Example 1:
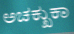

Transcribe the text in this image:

ಅಚಕ್ಖುಕಾ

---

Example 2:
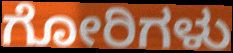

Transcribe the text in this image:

ಗೋರಿಗಳು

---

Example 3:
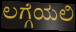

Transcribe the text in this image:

ಲಗ್ಗೆಯಲಿ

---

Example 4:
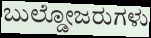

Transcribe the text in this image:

ಬುಲ್ಡೋಜರುಗಳು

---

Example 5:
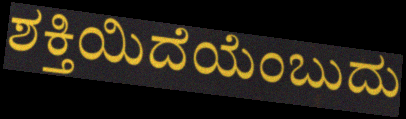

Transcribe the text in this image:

ಶಕ್ತಿಯಿದೆಯೆಂಬುದು